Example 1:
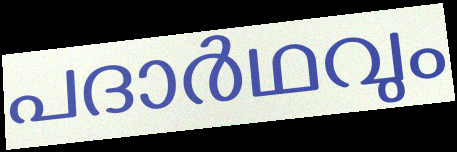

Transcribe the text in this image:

പദാർഥവും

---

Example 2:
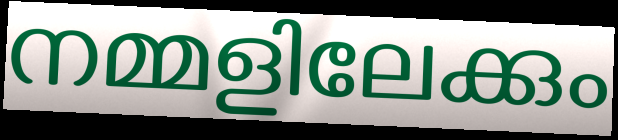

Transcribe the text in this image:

നമ്മളിലേക്കും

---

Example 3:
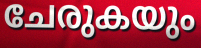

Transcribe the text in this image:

ചേരുകയും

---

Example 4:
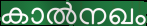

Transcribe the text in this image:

കാൽനഖം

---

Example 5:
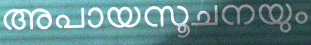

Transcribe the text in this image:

അപായസൂചനയും